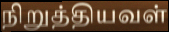
நிறுத்தியவள்